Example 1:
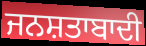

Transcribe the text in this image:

ਜਨਸ਼ਤਾਬਾਦੀ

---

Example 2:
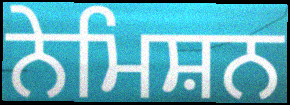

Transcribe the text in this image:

ਨੇਮਿਸ਼ਨ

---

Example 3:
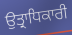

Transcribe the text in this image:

ਉਤ੍ਰਾਧਿਕਾਰੀ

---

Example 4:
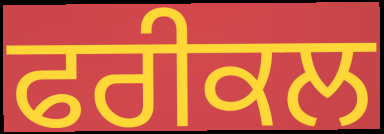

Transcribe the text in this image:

ਫਰੀਕਲ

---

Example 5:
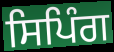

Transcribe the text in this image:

ਸਿਪਿੰਗ